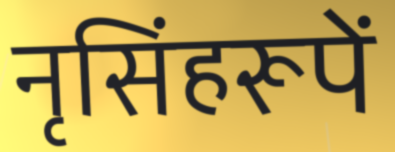
नृसिंहरूपें